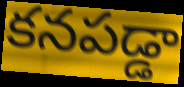
కనపడ్డా